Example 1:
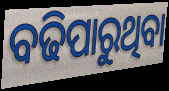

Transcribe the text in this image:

ବଢିପାରୁଥିବା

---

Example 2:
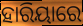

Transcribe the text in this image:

ହାରିୟାରେ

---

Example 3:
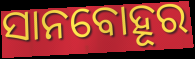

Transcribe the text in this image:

ସାନବୋହୂର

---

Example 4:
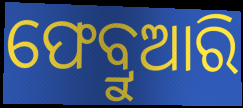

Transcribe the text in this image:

ଫେବ୍ରୁଆରି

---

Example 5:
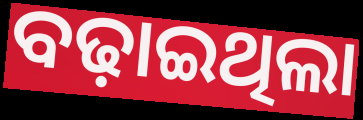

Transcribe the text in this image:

ବଢ଼ାଇଥିଲା